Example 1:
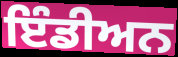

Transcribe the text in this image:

ਇੰਡੀਅਨ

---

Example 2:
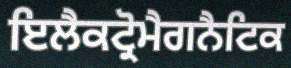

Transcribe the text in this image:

ਇਲੈਕਟ੍ਰੋਮੈਗਨੈਟਿਕ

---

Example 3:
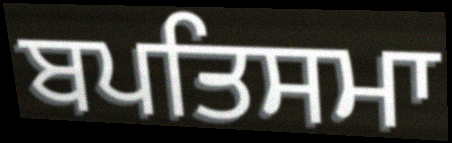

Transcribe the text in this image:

ਬਪਤਿਸਮਾ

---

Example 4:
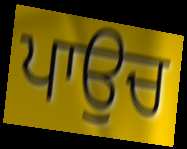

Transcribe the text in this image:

ਪਾਉਚ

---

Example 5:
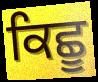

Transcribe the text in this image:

ਕਿਛੂ